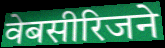
वेबसीरिजने